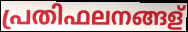
പ്രതിഫലനങ്ങള്